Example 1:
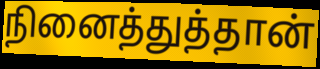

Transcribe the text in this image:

நினைத்துத்தான்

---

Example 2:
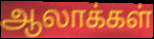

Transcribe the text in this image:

ஆலாக்கள்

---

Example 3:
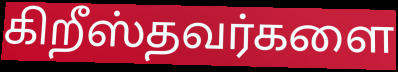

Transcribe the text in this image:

கிறீஸ்தவர்களை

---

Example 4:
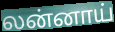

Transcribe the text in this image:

லன்னாய்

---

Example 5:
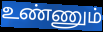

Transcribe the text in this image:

உண்ணும்